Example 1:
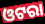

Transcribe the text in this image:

ଓଟରା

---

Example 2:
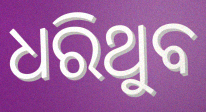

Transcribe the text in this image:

ଧରିଥୁବ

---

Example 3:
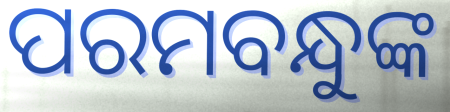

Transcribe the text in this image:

ପରମବନ୍ଧୁଙ୍କ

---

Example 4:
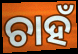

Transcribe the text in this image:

ଚାହଁ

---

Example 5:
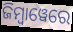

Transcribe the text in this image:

ଜିମ୍ୱାୱେରେ